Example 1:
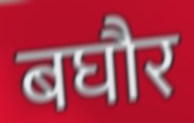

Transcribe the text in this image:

बघौर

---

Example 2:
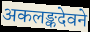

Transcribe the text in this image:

अकलङ्कदेवने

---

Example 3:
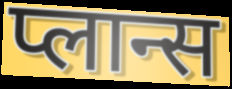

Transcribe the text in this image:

प्लान्स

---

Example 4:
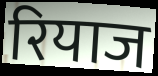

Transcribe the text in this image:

रियाज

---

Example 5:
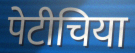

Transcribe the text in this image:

पेटीचिया